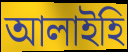
আলাইহি